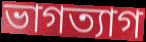
ভাগত্যাগ